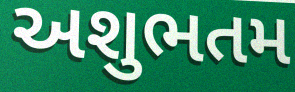
અશુભતમ